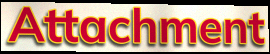
Attachment